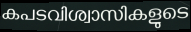
കപടവിശ്വാസികളുടെ